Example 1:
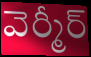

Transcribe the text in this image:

వెర్మీర్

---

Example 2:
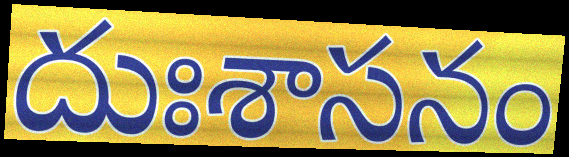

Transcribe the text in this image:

దుఃశాసనం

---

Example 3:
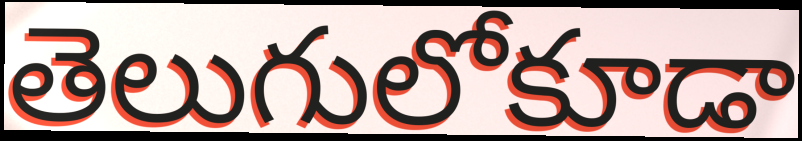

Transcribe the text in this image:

తెలుగులోకూడా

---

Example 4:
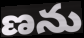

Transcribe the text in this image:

ణను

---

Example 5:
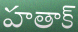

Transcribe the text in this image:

హతాక్